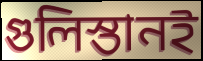
গুলিস্তানই